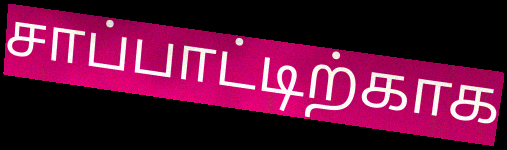
சாப்பாட்டிற்காக